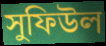
সুফিউল